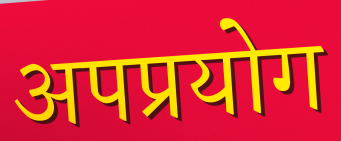
अपप्रयोग